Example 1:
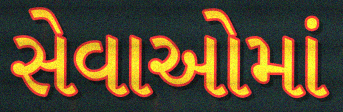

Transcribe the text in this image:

સેવાઓમાં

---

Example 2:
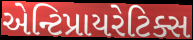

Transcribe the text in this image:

એન્ટિપ્રાયરેટિક્સ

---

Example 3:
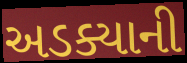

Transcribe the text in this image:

અડક્યાની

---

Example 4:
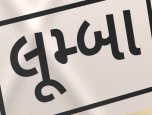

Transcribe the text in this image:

લૂમ્બા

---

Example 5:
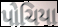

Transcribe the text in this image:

પોચિયા